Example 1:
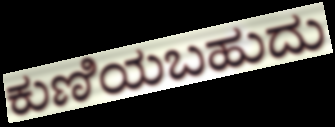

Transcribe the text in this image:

ಕುಣಿಯಬಹುದು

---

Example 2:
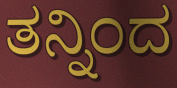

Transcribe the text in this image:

ತನ್ನಿಂದ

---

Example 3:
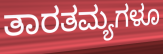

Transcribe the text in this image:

ತಾರತಮ್ಯಗಳೂ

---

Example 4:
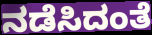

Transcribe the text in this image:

ನಡೆಸಿದಂತೆ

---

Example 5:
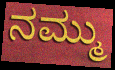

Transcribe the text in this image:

ನಮ್ಮು